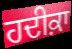
ਹਦੀਕ਼ਾ